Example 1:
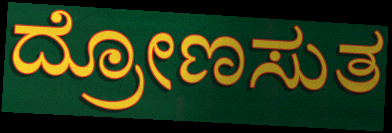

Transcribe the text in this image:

ದ್ರೋಣಸುತ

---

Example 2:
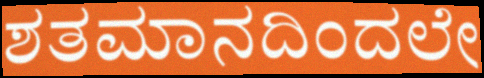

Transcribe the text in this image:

ಶತಮಾನದಿಂದಲೇ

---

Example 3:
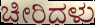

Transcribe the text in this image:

ಚೀರಿದಳು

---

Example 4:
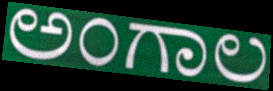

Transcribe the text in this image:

ಅಂಗಾಲ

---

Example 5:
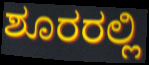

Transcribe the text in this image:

ಶೂರರಲ್ಲಿ